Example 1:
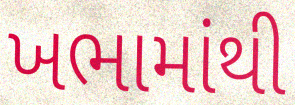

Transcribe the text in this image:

ખભામાંથી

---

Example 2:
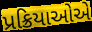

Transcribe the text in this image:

પ્રક્રિયાઓએ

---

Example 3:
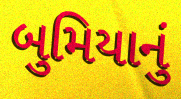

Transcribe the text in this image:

બુમિયાનું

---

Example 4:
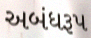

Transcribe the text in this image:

અબંધરૂપ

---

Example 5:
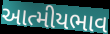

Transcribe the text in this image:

આત્મીયભાવ